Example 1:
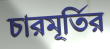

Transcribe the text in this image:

চারমূর্তির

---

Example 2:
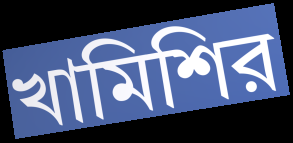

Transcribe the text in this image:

খামিশির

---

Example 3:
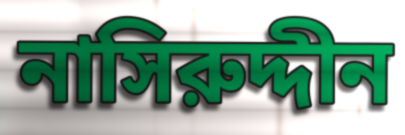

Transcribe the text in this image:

নাসিরুদ্দীন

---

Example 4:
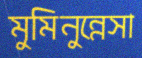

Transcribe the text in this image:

মুমিনুন্নেসা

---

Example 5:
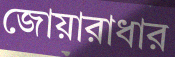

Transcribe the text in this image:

জোয়ারাধার